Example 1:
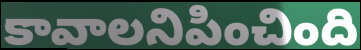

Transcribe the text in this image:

కావాలనిపించింది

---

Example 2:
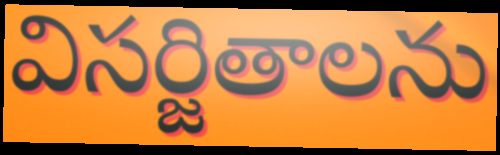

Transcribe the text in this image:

విసర్జితాలను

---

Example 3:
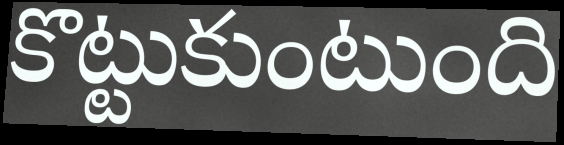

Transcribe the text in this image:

కొట్టుకుంటుంది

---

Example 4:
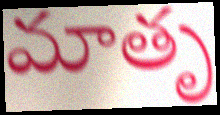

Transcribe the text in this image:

మాతృ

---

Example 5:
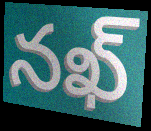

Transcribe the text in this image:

నఖ్